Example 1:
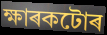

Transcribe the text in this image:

ক্ষাৰকটোৰ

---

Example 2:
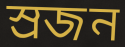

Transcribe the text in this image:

স্ৰজন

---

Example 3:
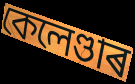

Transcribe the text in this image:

কেলেণ্ডাৰ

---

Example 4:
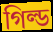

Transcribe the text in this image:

গিল্ড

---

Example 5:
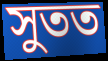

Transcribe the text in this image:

সুতত